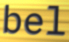
bel